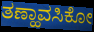
ತಣ್ಹಾವಸಿಕೋ